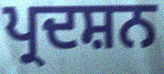
ਪ੍ਰਦਸ਼ਨ